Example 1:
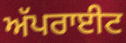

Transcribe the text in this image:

ਅੱਪਰਾਈਟ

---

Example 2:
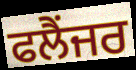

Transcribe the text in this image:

ਫਲੈਂਜਰ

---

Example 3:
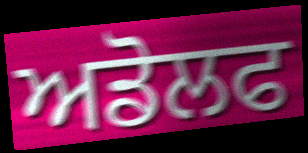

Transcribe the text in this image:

ਅਡੋਲਫ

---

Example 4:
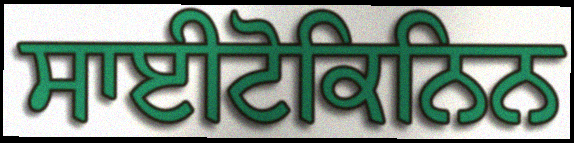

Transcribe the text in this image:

ਸਾਈਟੋਕਿਨਿਨ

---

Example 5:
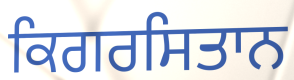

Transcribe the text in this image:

ਕਿਗਰਸਿਤਾਨ